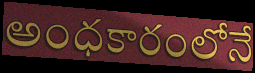
అంధకారంలోనే